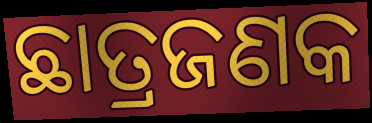
ଛାତ୍ରଜଣକ